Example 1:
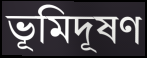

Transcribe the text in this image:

ভূমিদূষণ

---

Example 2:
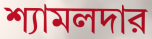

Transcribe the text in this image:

শ্যামলদার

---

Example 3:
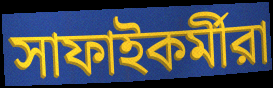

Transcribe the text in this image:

সাফাইকর্মীরা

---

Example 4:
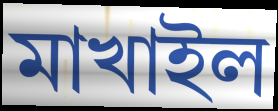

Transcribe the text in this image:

মাখাইল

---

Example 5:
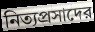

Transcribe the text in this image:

নিত্যপ্রসাদের